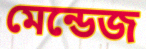
মেন্ডেজ